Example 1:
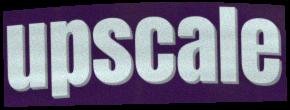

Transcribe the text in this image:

upscale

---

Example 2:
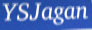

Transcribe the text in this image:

YSJagan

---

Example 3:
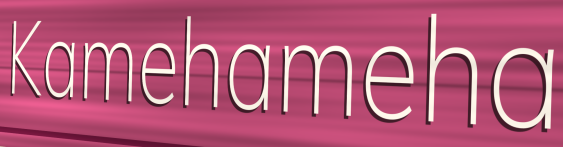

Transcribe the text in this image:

Kamehameha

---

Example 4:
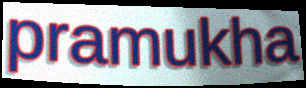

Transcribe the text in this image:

pramukha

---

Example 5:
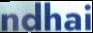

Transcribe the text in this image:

ndhai